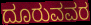
ದೂರುವವರ